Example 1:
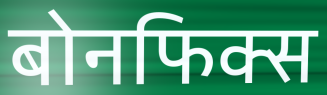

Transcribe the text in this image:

बोनफिक्स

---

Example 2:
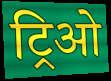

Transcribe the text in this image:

ट्रिओ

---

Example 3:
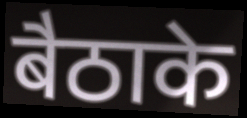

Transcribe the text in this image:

बैठाके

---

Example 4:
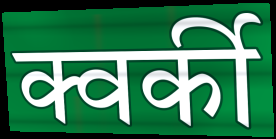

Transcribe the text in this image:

क्वर्की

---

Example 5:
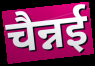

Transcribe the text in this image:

चैन्नई